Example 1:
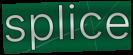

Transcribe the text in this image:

splice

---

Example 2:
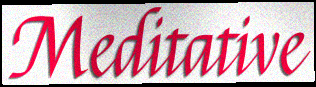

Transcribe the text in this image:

Meditative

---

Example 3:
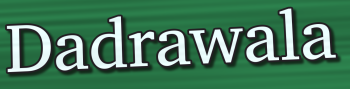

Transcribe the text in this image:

Dadrawala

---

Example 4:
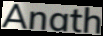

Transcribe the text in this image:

Anath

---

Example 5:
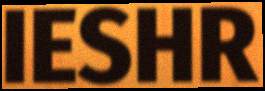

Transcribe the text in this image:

IESHR